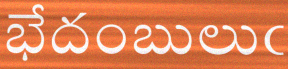
భేదంబులుఁ